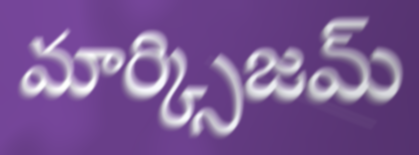
మార్క్సిజమ్